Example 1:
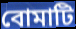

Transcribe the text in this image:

বোমাটি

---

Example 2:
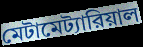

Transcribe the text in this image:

মেটামেট্যারিয়াল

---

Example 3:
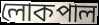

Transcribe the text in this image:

লোকপাল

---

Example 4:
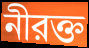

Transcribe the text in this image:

নীরক্ত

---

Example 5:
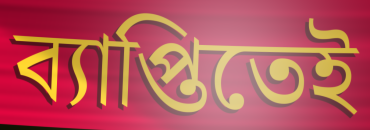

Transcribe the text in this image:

ব্যাপ্তিতেই